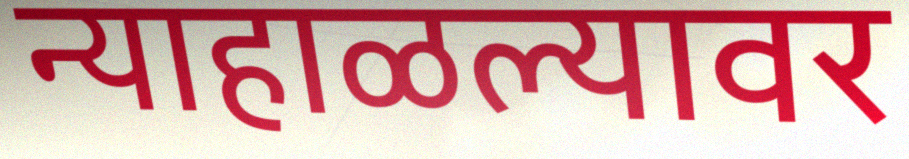
न्याहाळल्यावर